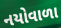
નયોવાળા